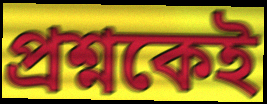
প্রশ্নকেই